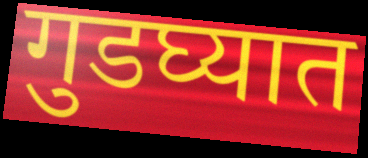
गुडघ्यात